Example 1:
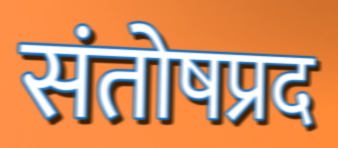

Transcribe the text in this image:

संतोषप्रद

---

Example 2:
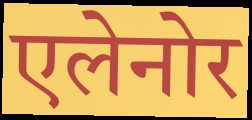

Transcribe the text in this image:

एलेनोर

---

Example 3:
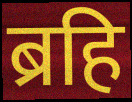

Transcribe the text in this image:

ब्रहि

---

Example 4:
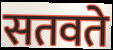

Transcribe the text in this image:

सतवते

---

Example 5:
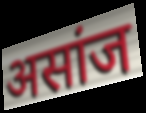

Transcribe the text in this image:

असांज